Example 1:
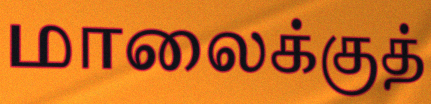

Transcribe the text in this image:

மாலைக்குத்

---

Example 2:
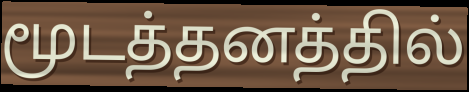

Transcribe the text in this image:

மூடத்தனத்தில்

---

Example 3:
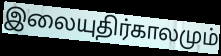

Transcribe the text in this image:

இலையுதிர்காலமும்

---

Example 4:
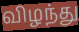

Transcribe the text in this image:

விழந்து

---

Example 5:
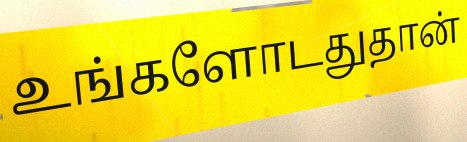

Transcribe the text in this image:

உங்களோடதுதான்